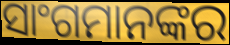
ସାଂଗମାନଙ୍କର